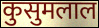
कुसुमलाल